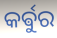
କର୍ଵୁର